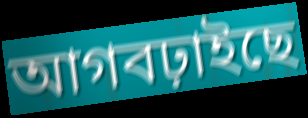
আগবঢ়াইছে